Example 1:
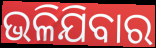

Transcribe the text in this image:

ଭଳିଯିବାର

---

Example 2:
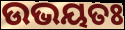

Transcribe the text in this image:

ଉଭୟତଃ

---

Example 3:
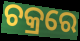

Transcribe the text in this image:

ଚକ୍ରରେ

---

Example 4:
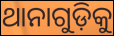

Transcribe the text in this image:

ଥାନାଗୁଡ଼ିକୁ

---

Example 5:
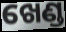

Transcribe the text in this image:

ଖେଣ୍ଡ